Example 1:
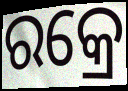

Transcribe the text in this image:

ରକ୍ରେ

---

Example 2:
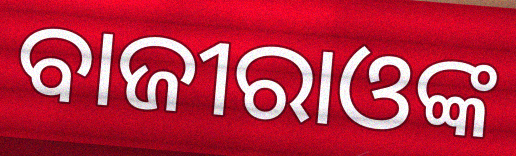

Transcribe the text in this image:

ବାଜୀରାଓଙ୍କ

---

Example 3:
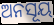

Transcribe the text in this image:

ଅନସୂୟ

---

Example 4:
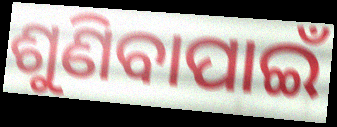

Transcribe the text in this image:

ଶୁଣିବାପାଇଁ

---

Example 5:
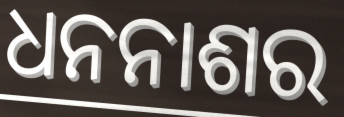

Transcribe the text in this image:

ଧନନାଶର